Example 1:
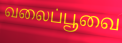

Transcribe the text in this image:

வலைப்பூவை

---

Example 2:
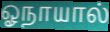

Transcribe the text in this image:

ஓநாயால்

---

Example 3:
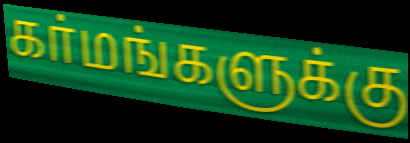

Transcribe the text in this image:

கர்மங்களுக்கு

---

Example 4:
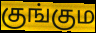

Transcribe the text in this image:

குங்கும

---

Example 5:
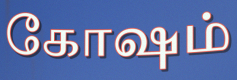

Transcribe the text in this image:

கோஷம்